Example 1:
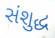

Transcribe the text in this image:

સંશુદ્ધ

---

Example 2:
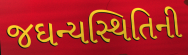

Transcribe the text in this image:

જઘન્યસ્થિતિની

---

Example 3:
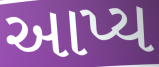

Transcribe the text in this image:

આપ્ય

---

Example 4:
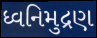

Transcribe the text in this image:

ધ્વનિમુદ્રણ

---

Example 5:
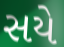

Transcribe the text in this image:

સયે